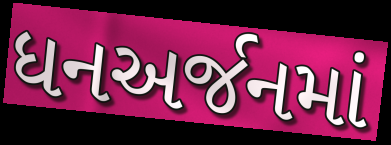
ધનઅર્જનમાં